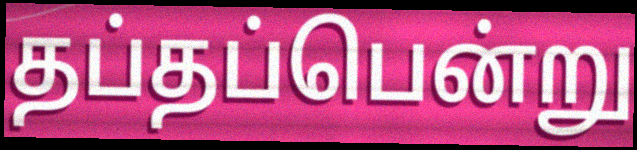
தப்தப்பென்று